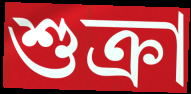
শুক্ৰা